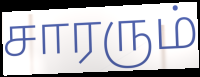
சாரரும்